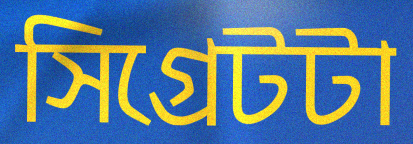
সিগ্রেটটা